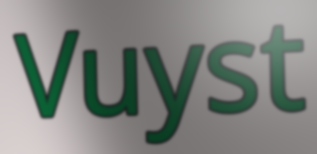
Vuyst